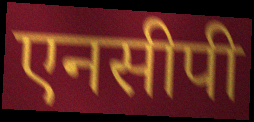
एनसीपी